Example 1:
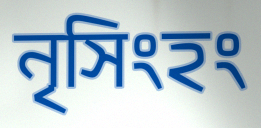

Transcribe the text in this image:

নৃসিংহং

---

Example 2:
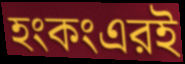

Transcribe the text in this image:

হংকংএরই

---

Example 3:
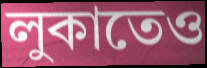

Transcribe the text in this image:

লুকাতেও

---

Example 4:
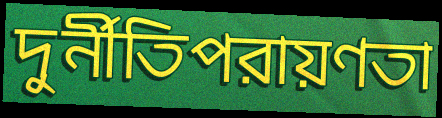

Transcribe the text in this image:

দুর্নীতিপরায়ণতা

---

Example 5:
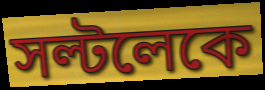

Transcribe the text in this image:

সল্টলেকে